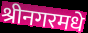
श्रीनगरमधे